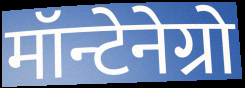
मॉन्टेनेग्रो